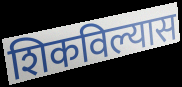
शिकविल्यास